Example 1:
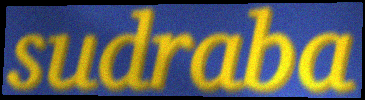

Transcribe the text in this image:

sudraba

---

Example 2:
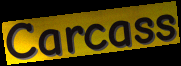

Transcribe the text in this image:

Carcass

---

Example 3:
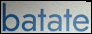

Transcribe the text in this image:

batate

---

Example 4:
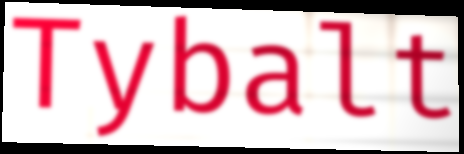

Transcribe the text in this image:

Tybalt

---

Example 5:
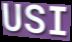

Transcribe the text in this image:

USI